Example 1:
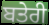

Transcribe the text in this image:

ਬਤੇਰੀ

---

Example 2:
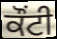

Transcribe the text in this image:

ਕੌਂਟੀ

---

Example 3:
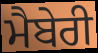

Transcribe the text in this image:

ਮੈਬੇਰੀ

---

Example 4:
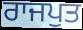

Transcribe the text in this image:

ਰਾਜਪੁਤ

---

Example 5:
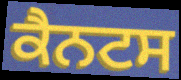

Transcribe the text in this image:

ਕੈਨਟਸ